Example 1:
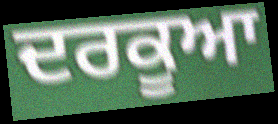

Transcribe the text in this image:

ਦਰਕੂਆ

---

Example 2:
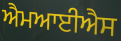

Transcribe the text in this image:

ਐਮਆਈਐਸ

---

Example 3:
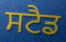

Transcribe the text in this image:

ਸਟੈਡ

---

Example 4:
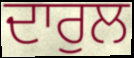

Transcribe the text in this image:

ਦਾਰੁਲ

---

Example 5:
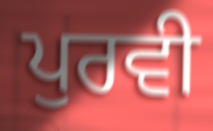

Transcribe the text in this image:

ਪੁਰਵੀ